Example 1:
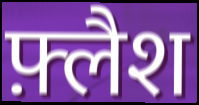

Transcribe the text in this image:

फ़्लैश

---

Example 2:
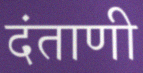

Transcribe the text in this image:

दंताणी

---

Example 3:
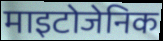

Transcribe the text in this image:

माइटोजेनिक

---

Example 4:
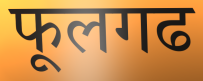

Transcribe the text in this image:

फूलगढ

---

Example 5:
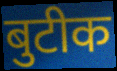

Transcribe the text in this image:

बुटीक